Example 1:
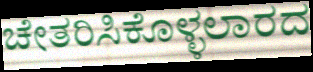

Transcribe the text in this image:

ಚೇತರಿಸಿಕೊಳ್ಳಲಾರದ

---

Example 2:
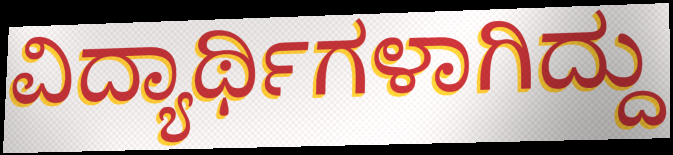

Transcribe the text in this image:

ವಿದ್ಯಾರ್ಥಿಗಳಾಗಿದ್ದು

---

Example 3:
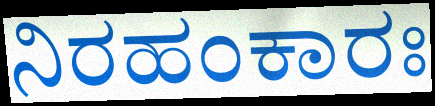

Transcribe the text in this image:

ನಿರಹಂಕಾರಃ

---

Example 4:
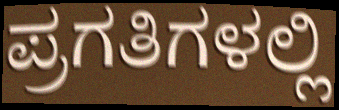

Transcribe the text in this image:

ಪ್ರಗತಿಗಳಲ್ಲಿ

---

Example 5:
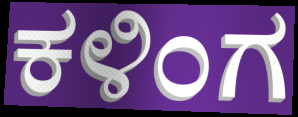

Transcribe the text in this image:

ಕಳಿಂಗ